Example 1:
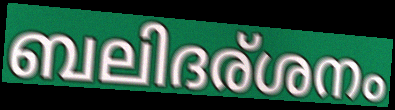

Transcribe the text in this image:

ബലിദര്ശനം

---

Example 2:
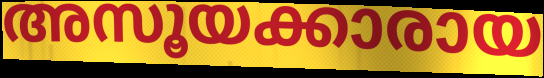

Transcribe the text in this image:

അസൂയക്കാരായ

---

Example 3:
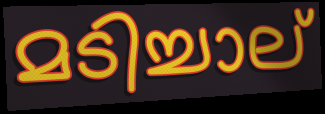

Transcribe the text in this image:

മടിച്ചാല്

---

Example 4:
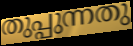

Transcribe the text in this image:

തുപ്പുന്നതു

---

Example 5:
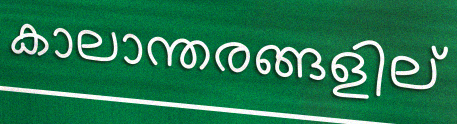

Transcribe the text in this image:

കാലാന്തരങ്ങളില്